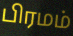
பிரமம்